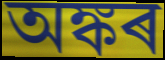
অঙ্কৰ